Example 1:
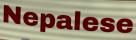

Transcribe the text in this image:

Nepalese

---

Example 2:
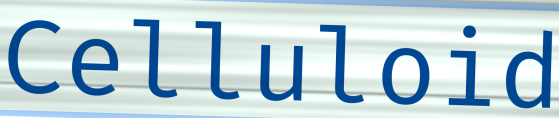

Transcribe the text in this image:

Celluloid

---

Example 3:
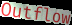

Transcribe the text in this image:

Outflow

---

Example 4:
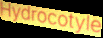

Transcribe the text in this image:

Hydrocotyle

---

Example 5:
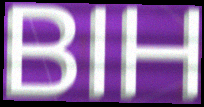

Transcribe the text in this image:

BIH